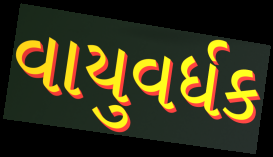
વાયુવર્ધક